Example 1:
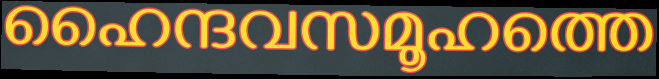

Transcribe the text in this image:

ഹൈന്ദവസമൂഹത്തെ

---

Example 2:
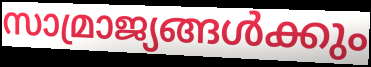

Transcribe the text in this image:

സാമ്രാജ്യങ്ങൾക്കും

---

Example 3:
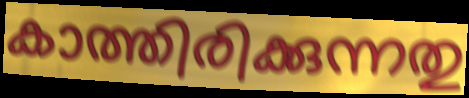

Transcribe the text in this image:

കാത്തിരിക്കുന്നതു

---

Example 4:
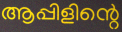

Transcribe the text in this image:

ആപ്പിളിന്റെ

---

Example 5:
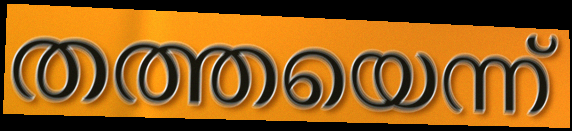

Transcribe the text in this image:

തത്തയെന്ന്